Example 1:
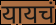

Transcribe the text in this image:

यायचं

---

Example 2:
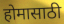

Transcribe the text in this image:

होमासाठी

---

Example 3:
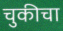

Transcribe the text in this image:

चुकीचा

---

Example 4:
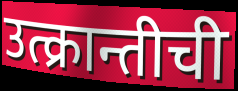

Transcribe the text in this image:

उत्क्रान्तीची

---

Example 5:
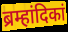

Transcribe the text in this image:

ब्रम्हांदिकां